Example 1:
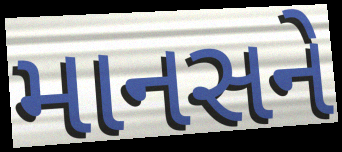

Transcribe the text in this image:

માનસને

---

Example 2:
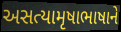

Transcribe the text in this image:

અસત્યામૃષાભાષાને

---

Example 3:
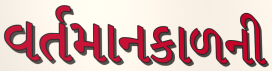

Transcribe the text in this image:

વર્તમાનકાળની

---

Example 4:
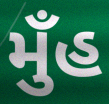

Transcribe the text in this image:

મુઁહ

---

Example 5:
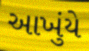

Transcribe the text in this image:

આખુંયે